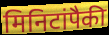
मिनिटांपैकी